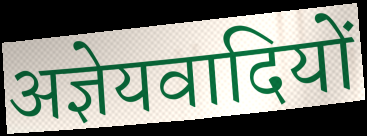
अज्ञेयवादियों